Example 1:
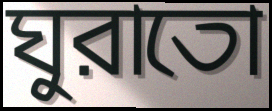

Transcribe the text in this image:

ঘুরাতো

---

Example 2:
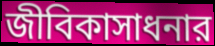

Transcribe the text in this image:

জীবিকাসাধনার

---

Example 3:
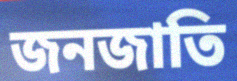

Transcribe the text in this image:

জনজাতি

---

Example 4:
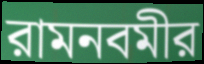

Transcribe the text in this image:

রামনবমীর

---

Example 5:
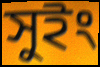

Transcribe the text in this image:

সুইং